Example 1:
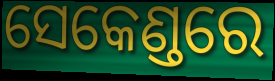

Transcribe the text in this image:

ସେକେଣ୍ଡରେ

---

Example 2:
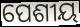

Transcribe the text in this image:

ପେଶୀୟ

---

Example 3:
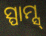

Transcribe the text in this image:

ସ୍ପାମ୍ସ୍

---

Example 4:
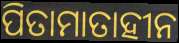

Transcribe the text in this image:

ପିତାମାତାହୀନ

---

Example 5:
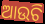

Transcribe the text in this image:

ଆଉଚି